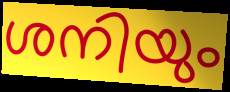
ശനിയും